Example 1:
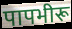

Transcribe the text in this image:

पापभीरू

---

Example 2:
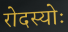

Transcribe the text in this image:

रोदस्योः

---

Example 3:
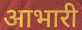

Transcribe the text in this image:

आभारी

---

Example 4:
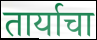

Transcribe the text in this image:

तार्याचा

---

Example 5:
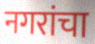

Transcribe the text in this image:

नगरांचा